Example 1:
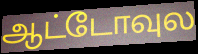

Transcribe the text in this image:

ஆட்டோவுல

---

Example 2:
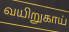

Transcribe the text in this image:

வயிறுகாய்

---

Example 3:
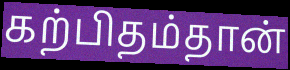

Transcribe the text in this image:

கற்பிதம்தான்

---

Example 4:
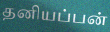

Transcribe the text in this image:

தனியப்பன்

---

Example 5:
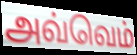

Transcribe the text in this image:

அவ்வெம்